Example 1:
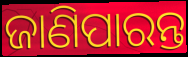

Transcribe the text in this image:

ଜାଣିପାରନ୍ତ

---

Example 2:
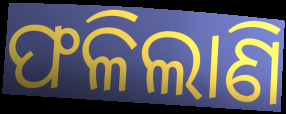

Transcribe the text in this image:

ଫଳିଲାଣି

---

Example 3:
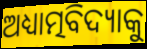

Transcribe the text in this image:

ଅଧ୍ୟାତ୍ମବିଦ୍ୟାକୁ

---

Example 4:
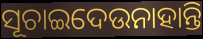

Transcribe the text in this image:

ସୂଚାଇଦେଉନାହାନ୍ତି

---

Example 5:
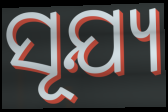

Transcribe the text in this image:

ସୂଯ୍ୟ